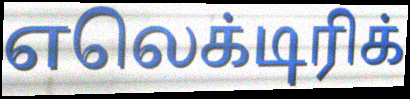
எலெக்டிரிக்